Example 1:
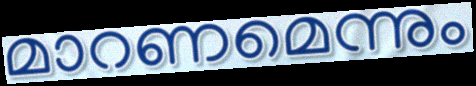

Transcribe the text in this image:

മാറണമെന്നും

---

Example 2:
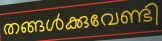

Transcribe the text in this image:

തങ്ങൾക്കുവേണ്ടി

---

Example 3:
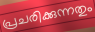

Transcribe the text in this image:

പ്രചരിക്കുന്നതും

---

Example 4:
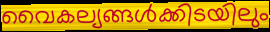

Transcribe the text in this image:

വൈകല്യങ്ങൾക്കിടയിലും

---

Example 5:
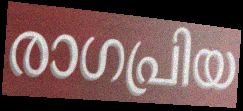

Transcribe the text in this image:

രാഗപ്രിയ